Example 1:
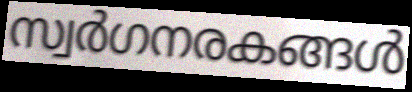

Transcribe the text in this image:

സ്വർഗനരകങ്ങൾ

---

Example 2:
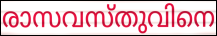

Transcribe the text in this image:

രാസവസ്തുവിനെ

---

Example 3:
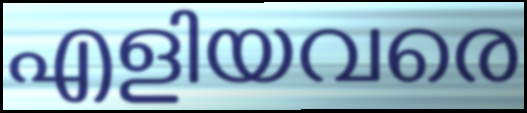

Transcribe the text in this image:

എളിയവരെ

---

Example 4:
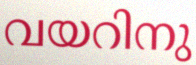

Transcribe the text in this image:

വയറിനു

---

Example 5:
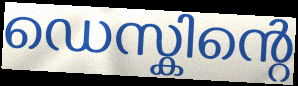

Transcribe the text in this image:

ഡെസ്കിന്റെ